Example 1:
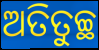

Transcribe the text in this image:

ଅତିତୁଚ୍ଛ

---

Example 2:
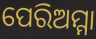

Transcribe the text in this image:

ପେରିଅମ୍ମା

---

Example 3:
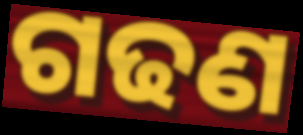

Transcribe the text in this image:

ଗଢଣ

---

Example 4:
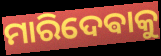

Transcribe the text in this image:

ମାରିଦେଵାକୁ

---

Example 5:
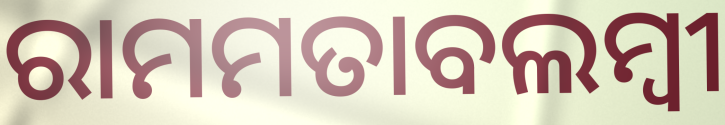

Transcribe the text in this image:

ରାମମତାବଲମ୍ବୀ